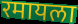
रमायला